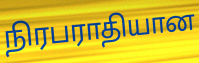
நிரபராதியான